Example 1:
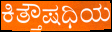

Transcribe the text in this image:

ಕಿತ್ತೌಷಧಿಯ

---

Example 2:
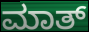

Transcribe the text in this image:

ಮಾತ್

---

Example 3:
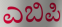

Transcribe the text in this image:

ಎಬಿಪಿ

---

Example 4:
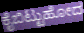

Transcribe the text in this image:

ಕೈಬಿಟ್ಟುಹೋದ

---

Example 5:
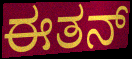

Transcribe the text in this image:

ಈತನ್